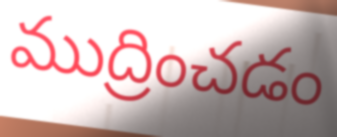
ముద్రించడం